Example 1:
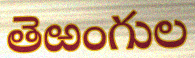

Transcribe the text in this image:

తెఱంగుల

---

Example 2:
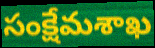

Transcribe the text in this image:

సంక్షేమశాఖ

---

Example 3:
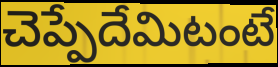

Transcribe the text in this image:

చెప్పేదేమిటంటే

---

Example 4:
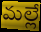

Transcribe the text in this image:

మల్లే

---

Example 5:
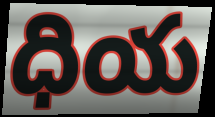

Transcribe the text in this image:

ధియ